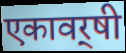
एकावर्षी